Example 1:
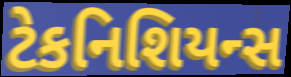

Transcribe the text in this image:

ટેકનિશિયન્સ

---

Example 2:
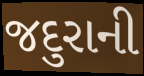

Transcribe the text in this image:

જદુરાની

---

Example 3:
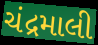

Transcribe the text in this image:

ચંદ્રમાલી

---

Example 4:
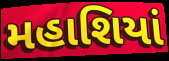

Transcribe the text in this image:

મહાશિયાં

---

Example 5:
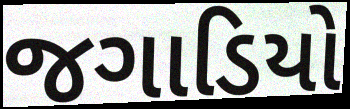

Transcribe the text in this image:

જગાડિયો